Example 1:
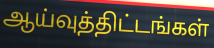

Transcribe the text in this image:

ஆய்வுத்திட்டங்கள்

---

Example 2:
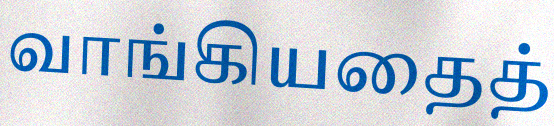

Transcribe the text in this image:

வாங்கியதைத்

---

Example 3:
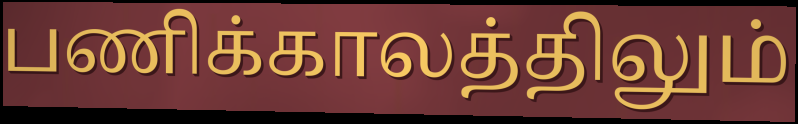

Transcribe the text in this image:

பணிக்காலத்திலும்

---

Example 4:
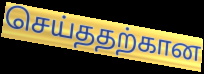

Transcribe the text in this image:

செய்ததற்கான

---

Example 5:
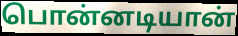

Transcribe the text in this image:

பொன்னடியான்